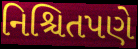
નિશ્ચિતપણે